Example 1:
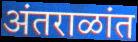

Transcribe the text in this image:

अंतराळांत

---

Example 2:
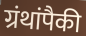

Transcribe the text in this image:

ग्रंथांपैकी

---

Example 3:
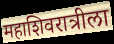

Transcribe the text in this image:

महाशिवरात्रीला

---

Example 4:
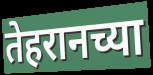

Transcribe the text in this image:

तेहरानच्या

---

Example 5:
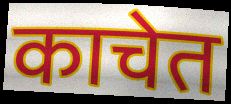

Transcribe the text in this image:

काचेत